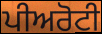
ਪੀਅਰੋਟੀ